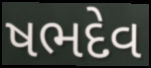
ષભદેવ